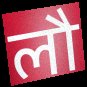
लौ